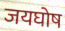
जयघोष